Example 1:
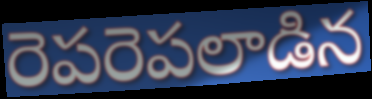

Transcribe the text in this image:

రెపరెపలాడిన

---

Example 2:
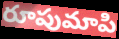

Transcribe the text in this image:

రూపుమాపి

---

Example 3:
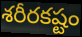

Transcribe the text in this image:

శరీరకష్టం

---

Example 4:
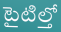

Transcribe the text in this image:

టైటిల్తో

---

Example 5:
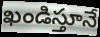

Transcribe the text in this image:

ఖండిస్తూనే